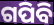
ଗପିବି